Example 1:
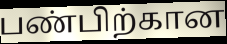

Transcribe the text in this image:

பண்பிற்கான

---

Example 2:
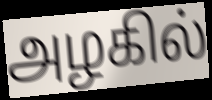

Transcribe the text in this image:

அழகில்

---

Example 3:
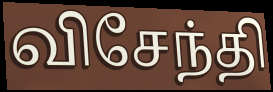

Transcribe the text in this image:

விசேந்தி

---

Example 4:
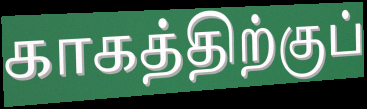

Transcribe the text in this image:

காகத்திற்குப்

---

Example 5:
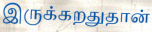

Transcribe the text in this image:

இருக்கறதுதான்